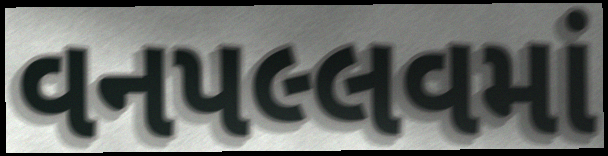
વનપલ્લવમાં